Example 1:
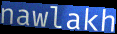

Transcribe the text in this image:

nawlakh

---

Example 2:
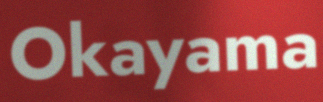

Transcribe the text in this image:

Okayama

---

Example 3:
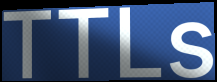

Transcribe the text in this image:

TTLs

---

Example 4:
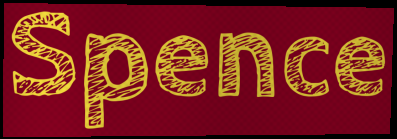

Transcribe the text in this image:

Spence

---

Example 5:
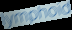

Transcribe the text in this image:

lymphoid